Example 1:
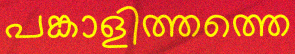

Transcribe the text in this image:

പങ്കാളിത്തത്തെ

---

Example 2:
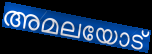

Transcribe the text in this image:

അമലയോട്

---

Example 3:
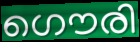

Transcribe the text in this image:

ഗൌരി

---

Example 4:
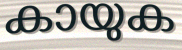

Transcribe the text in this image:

കായുക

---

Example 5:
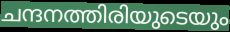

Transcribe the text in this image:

ചന്ദനത്തിരിയുടെയും